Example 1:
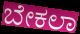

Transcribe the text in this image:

ಬೇಕಲಾ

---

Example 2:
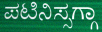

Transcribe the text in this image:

ಪಟಿನಿಸ್ಸಗ್ಗಾ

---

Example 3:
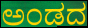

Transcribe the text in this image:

ಅಂಡದ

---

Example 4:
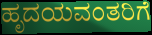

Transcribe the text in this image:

ಹೃದಯವಂತರಿಗೆ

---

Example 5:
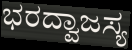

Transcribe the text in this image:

ಭರದ್ವಾಜಸ್ಯ